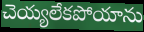
చెయ్యలేకపోయాను